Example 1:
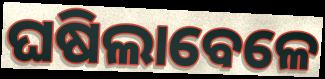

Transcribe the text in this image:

ଘଷିଲାବେଳେ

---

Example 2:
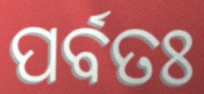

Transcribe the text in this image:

ପର୍ବତଃ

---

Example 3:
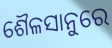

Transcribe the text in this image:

ଶୈଳସାନୁରେ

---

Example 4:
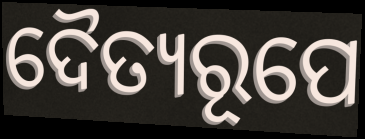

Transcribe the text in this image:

ଦୈତ୍ୟରୂପେ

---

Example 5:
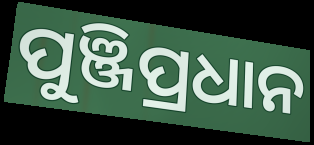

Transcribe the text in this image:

ପୁଞ୍ଜିପ୍ରଧାନ